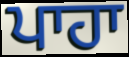
ਪਾਹਾ